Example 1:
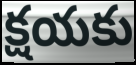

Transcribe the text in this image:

క్షయకు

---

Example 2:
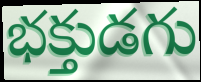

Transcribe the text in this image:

భక్తుడగు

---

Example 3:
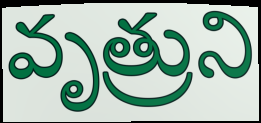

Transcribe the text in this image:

వృత్రుని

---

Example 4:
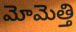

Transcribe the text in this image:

మోమెత్తి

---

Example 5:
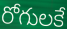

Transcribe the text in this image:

రోగులకే